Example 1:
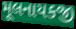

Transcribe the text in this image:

મૂલનાયકજી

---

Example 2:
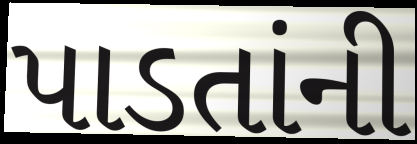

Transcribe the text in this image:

પાડતાંની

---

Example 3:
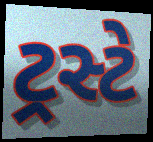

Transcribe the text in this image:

ટ્રસ્ટે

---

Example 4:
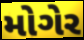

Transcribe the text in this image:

મોગેર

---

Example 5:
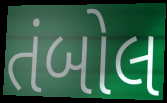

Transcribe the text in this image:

તંબોલ